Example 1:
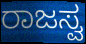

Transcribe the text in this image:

ರಾಜಸ್ವ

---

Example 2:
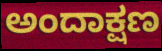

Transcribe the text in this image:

ಅಂದಾಕ್ಷಣ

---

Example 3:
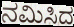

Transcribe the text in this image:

ನಮಿಸಿದ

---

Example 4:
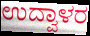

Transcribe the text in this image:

ಉದ್ವಾಳರ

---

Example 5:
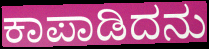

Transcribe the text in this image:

ಕಾಪಾಡಿದನು